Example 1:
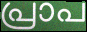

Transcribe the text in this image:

പ്രാപ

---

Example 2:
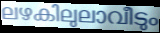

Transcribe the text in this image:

ലഴകിലുലാവീടും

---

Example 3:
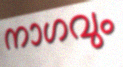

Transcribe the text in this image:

നാഗവും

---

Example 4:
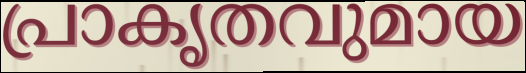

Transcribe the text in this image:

പ്രാകൃതവുമായ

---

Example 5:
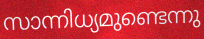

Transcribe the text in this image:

സാന്നിധ്യമുണ്ടെന്നു